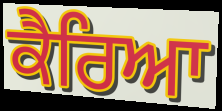
ਕੈਰਿਆ